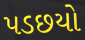
પડછયો